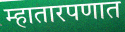
म्हातारपणात